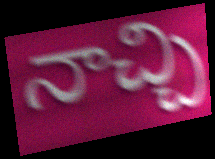
నాచ్చి